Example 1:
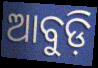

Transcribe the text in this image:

ଆବୁଡ଼ି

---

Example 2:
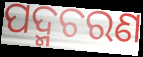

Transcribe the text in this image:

ପଦ୍ମଚରଣ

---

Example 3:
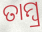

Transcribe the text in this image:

ତାମ୍ବ୍ର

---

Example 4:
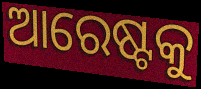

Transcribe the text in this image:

ଆରେଷ୍ଟକୁ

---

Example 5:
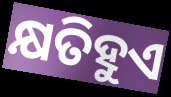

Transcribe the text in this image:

କ୍ଷତିହୁଏ